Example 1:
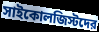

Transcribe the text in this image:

সাইকোলজিস্টদের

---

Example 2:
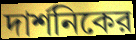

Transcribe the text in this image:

দার্শনিকের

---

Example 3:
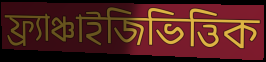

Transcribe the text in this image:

ফ্র্যাঞ্চাইজিভিত্তিক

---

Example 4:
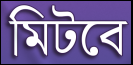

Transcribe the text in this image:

মিটবে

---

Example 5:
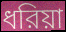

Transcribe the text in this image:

ধরিয়া